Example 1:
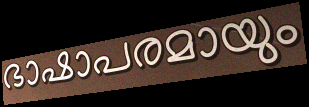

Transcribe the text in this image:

ഭാഷാപരമായും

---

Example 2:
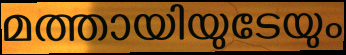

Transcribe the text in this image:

മത്തായിയുടേയും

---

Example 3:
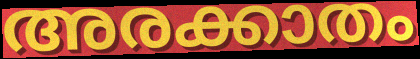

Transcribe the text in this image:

അരക്കാതം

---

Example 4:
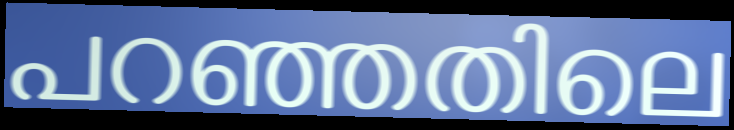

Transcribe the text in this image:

പറഞ്ഞതിലെ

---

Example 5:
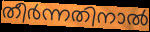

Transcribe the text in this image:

തീർന്നതിനാൽ